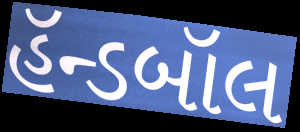
હૅન્ડબૉલ